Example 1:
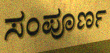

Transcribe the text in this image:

ಸಂಪೂರ್ಣ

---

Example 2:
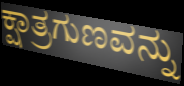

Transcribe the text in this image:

ಕ್ಷಾತ್ರಗುಣವನ್ನು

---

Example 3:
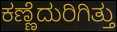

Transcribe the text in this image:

ಕಣ್ಣೆದುರಿಗಿತ್ತು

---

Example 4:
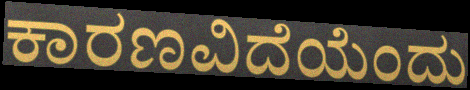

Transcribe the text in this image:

ಕಾರಣವಿದೆಯೆಂದು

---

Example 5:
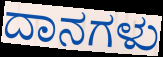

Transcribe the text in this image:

ದಾನಗಳು